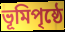
ভূমিপৃষ্ঠে